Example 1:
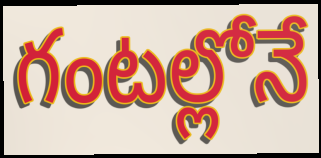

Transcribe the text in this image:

గంటల్లోనే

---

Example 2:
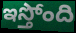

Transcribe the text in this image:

ఇస్తోంది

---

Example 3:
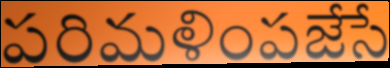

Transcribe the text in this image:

పరిమళింపజేసే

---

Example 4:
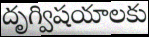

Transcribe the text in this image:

దృగ్విషయాలకు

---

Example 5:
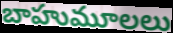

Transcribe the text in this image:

బాహుమూలలు